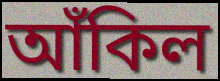
আঁকিল